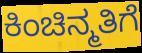
ಕಿಂಚಿನ್ಮತಿಗೆ